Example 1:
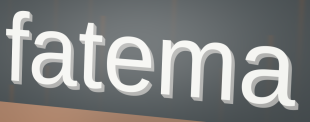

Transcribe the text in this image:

fatema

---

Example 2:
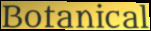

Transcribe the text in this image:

Botanical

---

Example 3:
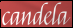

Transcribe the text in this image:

candela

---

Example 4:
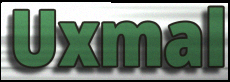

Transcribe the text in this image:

Uxmal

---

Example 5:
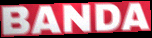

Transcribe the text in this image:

BANDA